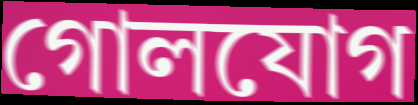
গোলযোগ